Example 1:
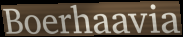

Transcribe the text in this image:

Boerhaavia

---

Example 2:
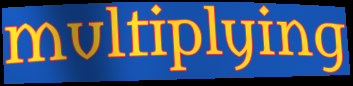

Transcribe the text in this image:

multiplying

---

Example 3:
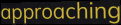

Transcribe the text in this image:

approaching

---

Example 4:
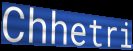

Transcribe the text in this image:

Chhetri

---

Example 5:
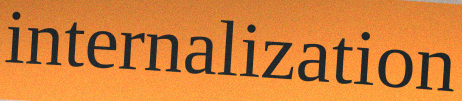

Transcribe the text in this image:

internalization